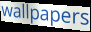
wallpapers